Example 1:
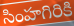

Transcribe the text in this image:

సింహగిరికి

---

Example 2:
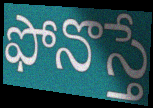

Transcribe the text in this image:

ఫోనొస్తే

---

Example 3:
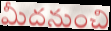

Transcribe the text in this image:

మీదనుంచి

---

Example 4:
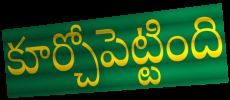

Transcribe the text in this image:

కూర్చోపెట్టింది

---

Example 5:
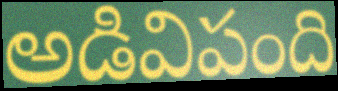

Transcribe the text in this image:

అడివిపంది